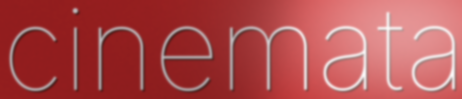
cinemata